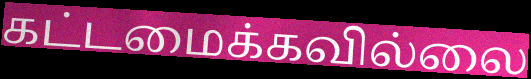
கட்டமைக்கவில்லை